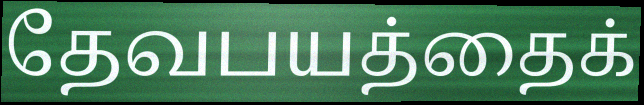
தேவபயத்தைக்